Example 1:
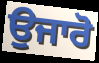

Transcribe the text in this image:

ਉਜਾਰੋ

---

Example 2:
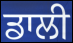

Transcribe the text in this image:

ਡਾਲੀ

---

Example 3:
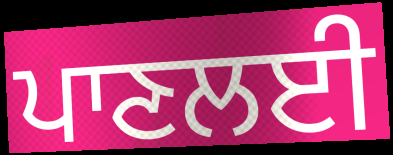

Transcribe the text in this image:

ਪਾਣਲਈ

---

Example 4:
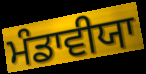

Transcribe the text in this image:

ਮੰਡਾਵੀਯਾ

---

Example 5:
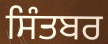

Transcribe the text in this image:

ਸਿੰਤਬਰ